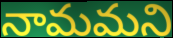
నామమని